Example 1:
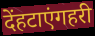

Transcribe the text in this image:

देंहटाएंगहरी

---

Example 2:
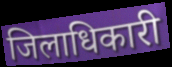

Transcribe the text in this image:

जिलाधिकारी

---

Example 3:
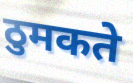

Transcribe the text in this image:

ठुमकते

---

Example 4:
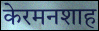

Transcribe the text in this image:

केरमनशाह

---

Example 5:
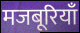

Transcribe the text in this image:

मजबूरियाँ